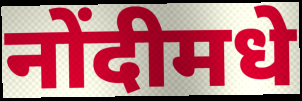
नोंदीमधे